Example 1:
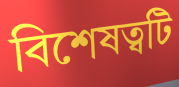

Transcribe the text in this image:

বিশেষত্বটি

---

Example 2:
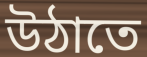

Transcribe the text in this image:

উঠাতে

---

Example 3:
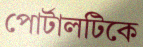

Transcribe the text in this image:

পোর্টালটিকে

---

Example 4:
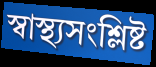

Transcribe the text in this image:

স্বাস্থ্যসংশ্লিষ্ট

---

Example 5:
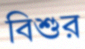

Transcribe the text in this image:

বিশুর